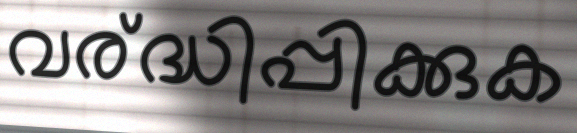
വര്ദ്ധിപ്പിക്കുക